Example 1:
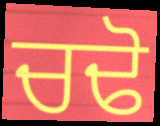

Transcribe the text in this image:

ਚਢੋ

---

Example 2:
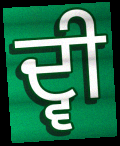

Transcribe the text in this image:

ਦ੍ਵੀ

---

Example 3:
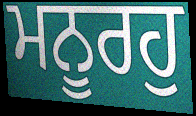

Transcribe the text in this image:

ਮਨੂਰਹੁ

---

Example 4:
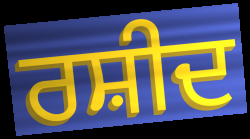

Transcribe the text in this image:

ਰਸ਼ੀਦ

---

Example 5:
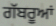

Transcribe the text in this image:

ਗੱਬਰੂਆਂ